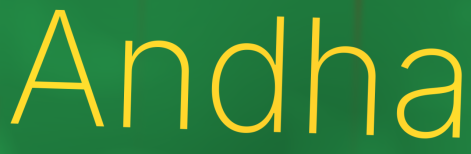
Andha